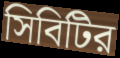
সিবিটির